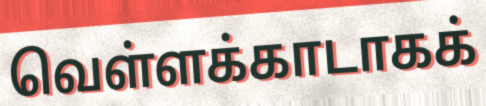
வெள்ளக்காடாகக்